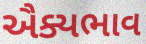
ઐક્યભાવ